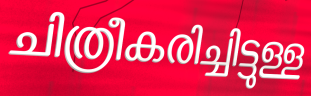
ചിത്രീകരിച്ചിട്ടുള്ള